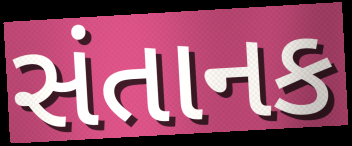
સંતાનક